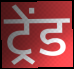
ट्रेंड